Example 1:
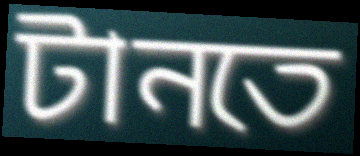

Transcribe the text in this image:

টানতে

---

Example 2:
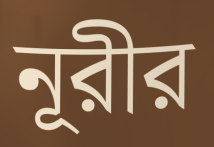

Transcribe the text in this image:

নূরীর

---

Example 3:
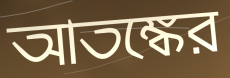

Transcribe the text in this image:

আতঙ্কের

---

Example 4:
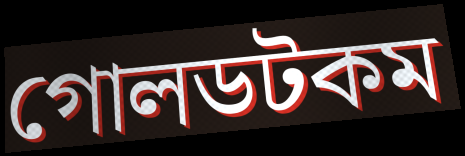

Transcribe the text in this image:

গোলডটকম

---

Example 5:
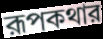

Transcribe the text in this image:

রূপকথার